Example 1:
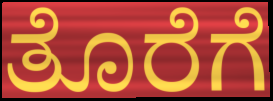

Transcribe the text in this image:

ತೊರೆಗೆ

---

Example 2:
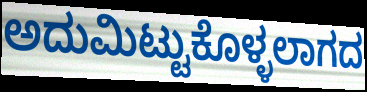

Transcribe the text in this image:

ಅದುಮಿಟ್ಟುಕೊಳ್ಳಲಾಗದ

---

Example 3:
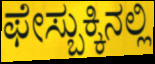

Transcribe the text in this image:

ಫೇಸ್ಬುಕ್ಕಿನಲ್ಲಿ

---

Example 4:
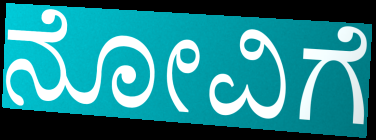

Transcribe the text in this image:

ನೋವಿಗೆ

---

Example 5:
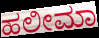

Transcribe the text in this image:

ಹಲೀಮಾ